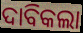
ଦାବିକଲା